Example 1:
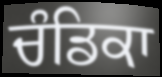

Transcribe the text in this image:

ਚੰਡਿਕਾ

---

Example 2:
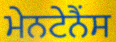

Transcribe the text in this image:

ਮੇਨਟੇਨੈਂਸ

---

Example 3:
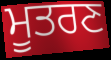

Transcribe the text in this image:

ਮੂਤਰਣ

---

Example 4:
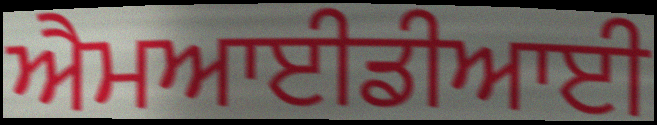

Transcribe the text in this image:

ਐਮਆਈਡੀਆਈ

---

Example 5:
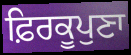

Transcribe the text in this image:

ਫ਼ਿਰਕੂਪੁਣਾ